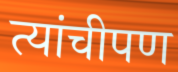
त्यांचीपण